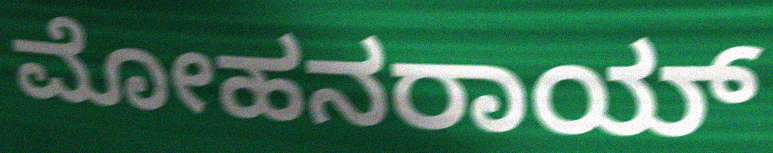
ಮೋಹನರಾಯ್